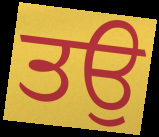
ਤਉ